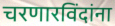
चरणारविंदांना